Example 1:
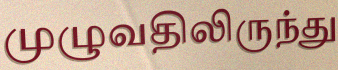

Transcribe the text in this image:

முழுவதிலிருந்து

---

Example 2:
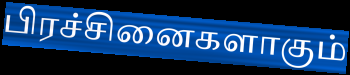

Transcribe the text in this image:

பிரச்சினைகளாகும்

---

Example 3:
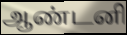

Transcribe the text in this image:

ஆண்டனி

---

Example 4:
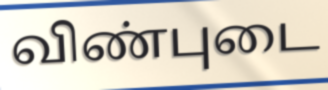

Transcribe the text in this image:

விண்புடை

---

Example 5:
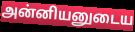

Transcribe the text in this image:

அன்னியனுடைய